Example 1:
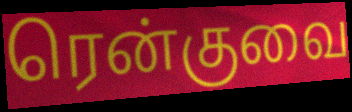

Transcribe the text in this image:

ரென்குவை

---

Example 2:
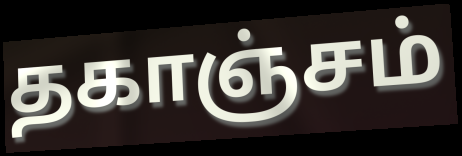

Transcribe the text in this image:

தகாஞ்சம்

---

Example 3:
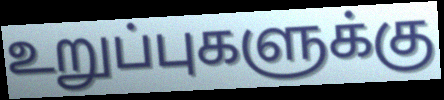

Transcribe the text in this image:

உறுப்புகளுக்கு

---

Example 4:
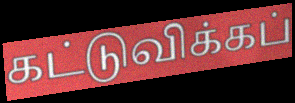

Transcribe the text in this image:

கட்டுவிக்கப்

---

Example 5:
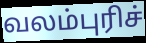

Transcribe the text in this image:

வலம்புரிச்